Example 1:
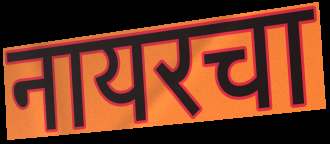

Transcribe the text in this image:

नायरचा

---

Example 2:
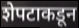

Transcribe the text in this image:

शेपटाकडून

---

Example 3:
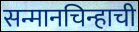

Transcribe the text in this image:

सन्मानचिन्हाची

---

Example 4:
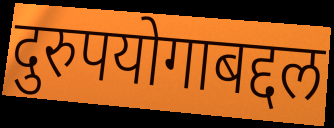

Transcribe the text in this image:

दुरुपयोगाबद्दल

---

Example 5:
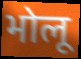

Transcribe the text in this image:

भोलू